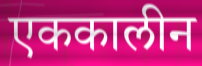
एककालीन